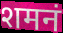
शमनं